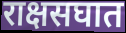
राक्षसघात